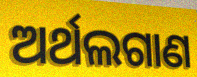
ଅର୍ଥଲଗାଣ